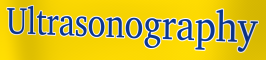
Ultrasonography